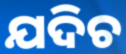
ଯଦିଚ